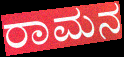
ರಾಮನ